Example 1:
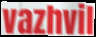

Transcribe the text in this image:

vazhvil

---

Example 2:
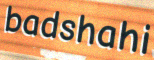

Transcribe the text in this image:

badshahi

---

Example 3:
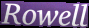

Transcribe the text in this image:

Rowell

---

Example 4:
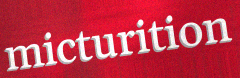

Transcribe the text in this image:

micturition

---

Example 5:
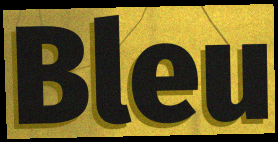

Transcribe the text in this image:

Bleu